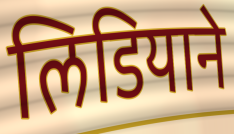
लिडियाने